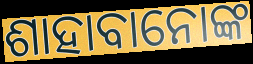
ଶାହାବାନୋଙ୍କ